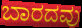
ಬಾರದವು